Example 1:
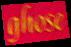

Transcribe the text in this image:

ghose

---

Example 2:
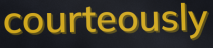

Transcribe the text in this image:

courteously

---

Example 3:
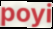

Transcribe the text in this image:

poyi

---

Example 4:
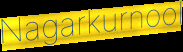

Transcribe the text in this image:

Nagarkurnool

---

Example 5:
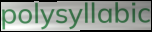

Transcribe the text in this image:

polysyllabic